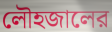
লৌহজালের